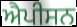
ਐਪੀਸਨ